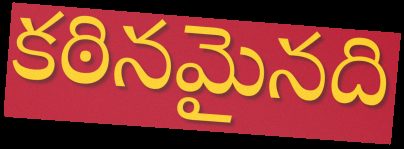
కఠినమైనది